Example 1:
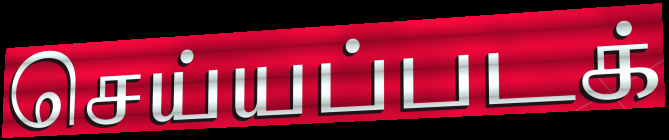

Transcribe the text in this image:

செய்யப்படக்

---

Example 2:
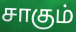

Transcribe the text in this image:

சாகும்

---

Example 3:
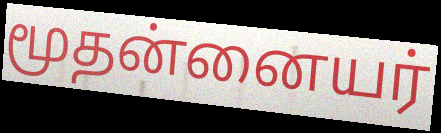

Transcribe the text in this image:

மூதன்னையர்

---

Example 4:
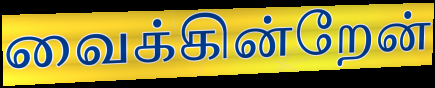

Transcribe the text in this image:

வைக்கின்றேன்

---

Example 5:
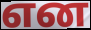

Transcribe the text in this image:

என